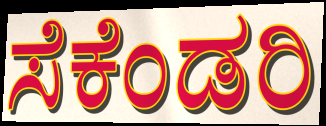
ಸೆಕೆಂಡರಿ